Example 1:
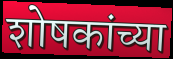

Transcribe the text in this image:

शोषकांच्या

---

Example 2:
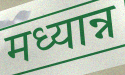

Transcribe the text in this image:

मध्यान्न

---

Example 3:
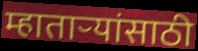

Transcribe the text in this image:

म्हाताऱ्यांसाठी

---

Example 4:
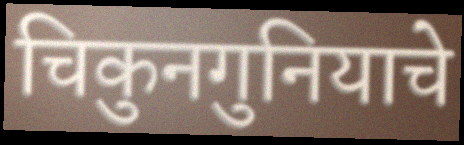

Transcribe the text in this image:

चिकुनगुनियाचे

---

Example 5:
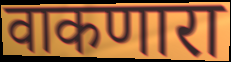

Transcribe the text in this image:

वाकणारा